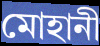
মোহানী